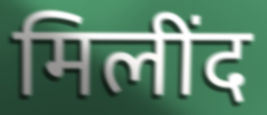
मिलींद